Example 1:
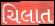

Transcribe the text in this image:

ચિલાત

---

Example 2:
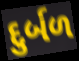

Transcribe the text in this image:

દુર્બળ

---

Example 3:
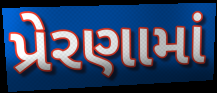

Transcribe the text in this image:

પ્રેરણામાં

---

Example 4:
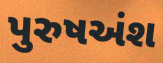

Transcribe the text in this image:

પુરુષઅંશ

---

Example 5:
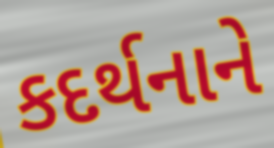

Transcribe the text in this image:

કદર્થનાને